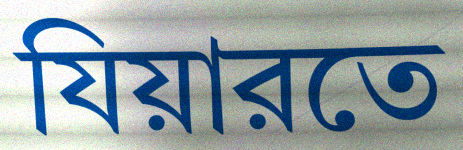
যিয়ারতে